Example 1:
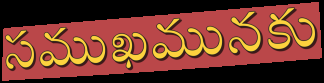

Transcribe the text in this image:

సముఖమునకు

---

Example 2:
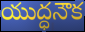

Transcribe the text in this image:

యుద్ధనౌక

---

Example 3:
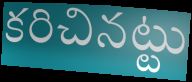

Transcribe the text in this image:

కరిచినట్టు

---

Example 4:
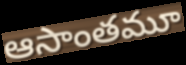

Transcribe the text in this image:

ఆసాంతమూ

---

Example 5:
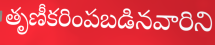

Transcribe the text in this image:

తృణీకరింపబడినవారిని